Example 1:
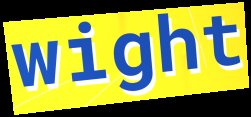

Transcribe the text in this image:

wight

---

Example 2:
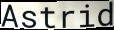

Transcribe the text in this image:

Astrid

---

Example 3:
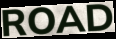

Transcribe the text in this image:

ROAD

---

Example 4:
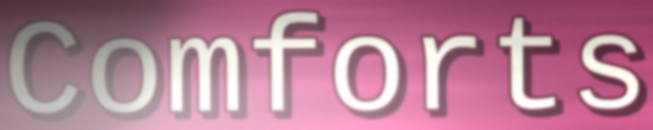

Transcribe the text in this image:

Comforts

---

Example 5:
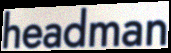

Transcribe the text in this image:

headman